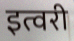
इत्वरी